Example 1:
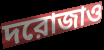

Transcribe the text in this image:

দরোজাও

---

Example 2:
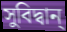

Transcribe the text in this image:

সুবিদ্বান্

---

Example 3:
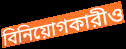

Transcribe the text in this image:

বিনিয়োগকারীও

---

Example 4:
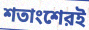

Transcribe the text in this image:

শতাংশেরই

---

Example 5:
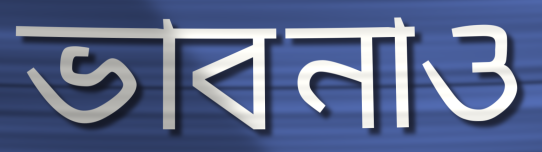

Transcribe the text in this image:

ভাবনাও